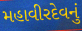
મહાવીરદેવનું